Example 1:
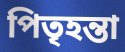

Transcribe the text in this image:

পিতৃহন্তা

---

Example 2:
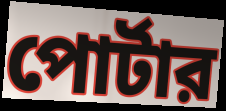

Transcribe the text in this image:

পোর্টার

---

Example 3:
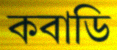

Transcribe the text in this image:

কবাডি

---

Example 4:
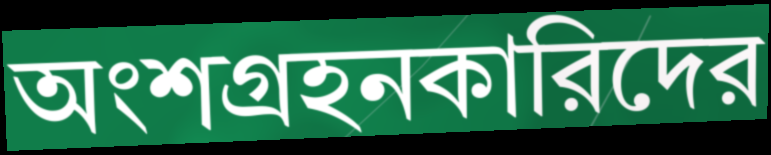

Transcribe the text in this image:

অংশগ্রহনকারিদের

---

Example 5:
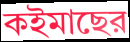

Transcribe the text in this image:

কইমাছের